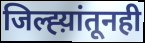
जिल्ह्य़ांतूनही